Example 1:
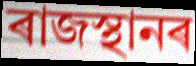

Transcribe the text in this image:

ৰাজস্থানৰ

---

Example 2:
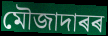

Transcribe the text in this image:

মৌজাদাৰৰ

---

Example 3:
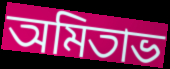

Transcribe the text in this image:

অমিতাভ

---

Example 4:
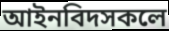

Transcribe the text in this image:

আইনবিদসকলে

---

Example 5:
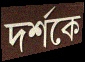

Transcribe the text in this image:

দৰ্শকে